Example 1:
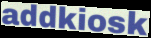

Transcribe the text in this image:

addkiosk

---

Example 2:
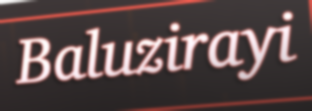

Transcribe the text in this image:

Baluzirayi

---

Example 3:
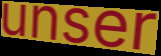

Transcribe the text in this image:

unser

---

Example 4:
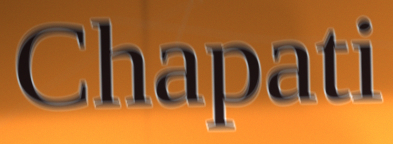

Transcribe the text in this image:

Chapati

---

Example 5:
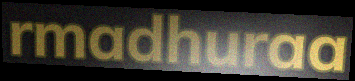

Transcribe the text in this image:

rmadhuraa